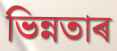
ভিন্নতাৰ